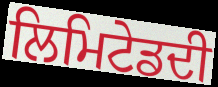
ਲਿਮਿਟੇਡਦੀ